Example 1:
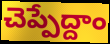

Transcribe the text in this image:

చెప్పేద్దాం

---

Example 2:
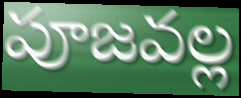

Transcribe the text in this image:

పూజవల్ల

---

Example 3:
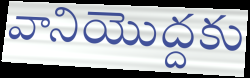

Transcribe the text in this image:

వానియొద్దకు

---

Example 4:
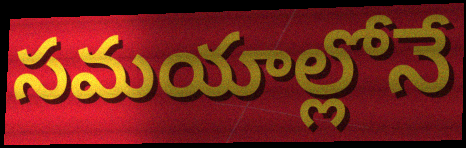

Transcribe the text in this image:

సమయాల్లోనే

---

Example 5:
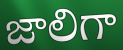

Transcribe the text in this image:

జాలిగా